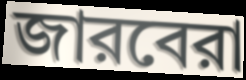
জারবেরা